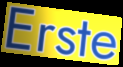
Erste